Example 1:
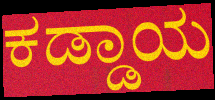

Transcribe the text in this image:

ಕಡ್ಡಾಯ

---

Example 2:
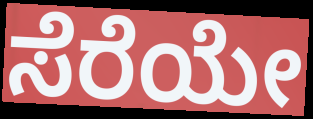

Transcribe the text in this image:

ಸೆರೆಯೇ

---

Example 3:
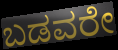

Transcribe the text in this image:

ಬಡವರೇ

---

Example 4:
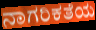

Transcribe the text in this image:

ನಾಗರಿಕತೆಯ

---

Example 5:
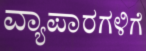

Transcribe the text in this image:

ವ್ಯಾಪಾರಗಳಿಗೆ